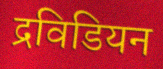
द्रविडियन